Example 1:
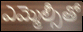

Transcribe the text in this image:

ఎమ్మెల్సీతో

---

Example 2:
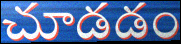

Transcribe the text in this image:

చూడడం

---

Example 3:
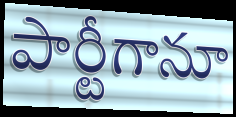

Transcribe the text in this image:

పార్టీగానూ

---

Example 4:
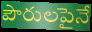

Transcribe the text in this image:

పౌరులపైనే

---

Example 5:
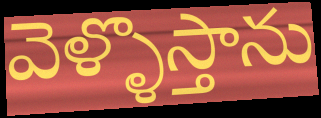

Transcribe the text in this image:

వెళ్ళొస్తాను